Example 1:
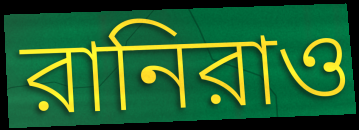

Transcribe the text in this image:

রানিরাও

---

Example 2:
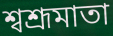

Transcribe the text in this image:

শ্বশ্রূমাতা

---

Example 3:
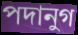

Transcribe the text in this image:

পদানুগ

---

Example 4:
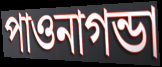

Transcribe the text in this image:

পাওনাগন্ডা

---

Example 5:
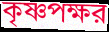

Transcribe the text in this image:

কৃষ্ণপক্ষর